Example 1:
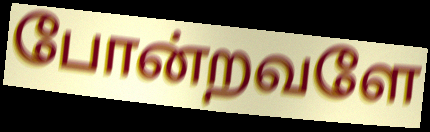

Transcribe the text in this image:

போன்றவளே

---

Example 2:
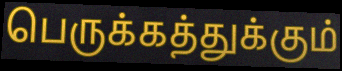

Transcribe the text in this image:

பெருக்கத்துக்கும்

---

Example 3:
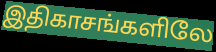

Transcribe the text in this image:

இதிகாசங்களிலே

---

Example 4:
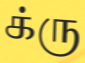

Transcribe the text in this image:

க்ரு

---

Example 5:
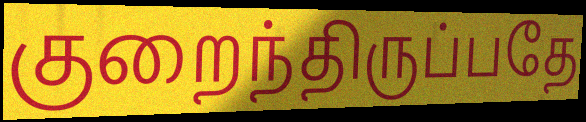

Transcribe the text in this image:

குறைந்திருப்பதே